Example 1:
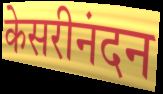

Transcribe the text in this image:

केसरीनंदन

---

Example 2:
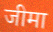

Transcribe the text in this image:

जीमा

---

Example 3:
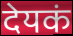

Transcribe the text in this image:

देयकं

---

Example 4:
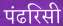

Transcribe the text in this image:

पंढरिसी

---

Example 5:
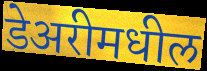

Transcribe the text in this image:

डेअरीमधील